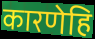
कारणेहि